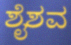
ಶೈಶವ